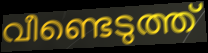
വീണ്ടെടുത്ത്